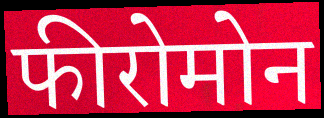
फीरोमोन